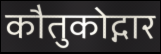
कौतुकोद्गार